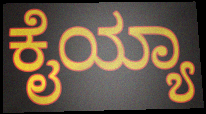
ಕೈಯ್ಯಾ